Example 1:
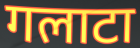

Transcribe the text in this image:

गलाटा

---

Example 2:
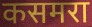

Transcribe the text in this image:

कसमरा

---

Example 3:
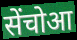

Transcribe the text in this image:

सेंचोआ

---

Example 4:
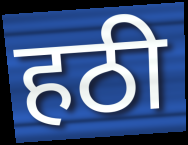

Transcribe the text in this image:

हठी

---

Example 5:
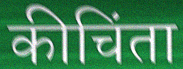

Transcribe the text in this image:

कीचिंता